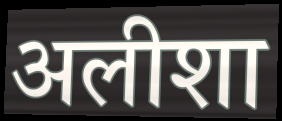
अलीशा